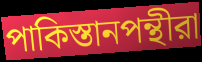
পাকিস্তানপন্থীরা